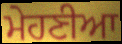
ਮੇਹਣੀਆ